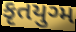
કૃતયુગ્મ